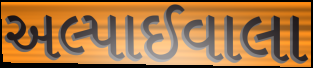
અલ્પાઈવાલા